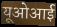
यूओआई